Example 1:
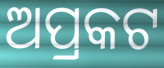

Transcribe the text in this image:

ଅପ୍ରକଟ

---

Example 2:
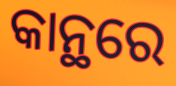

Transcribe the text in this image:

କାନ୍ଥରେ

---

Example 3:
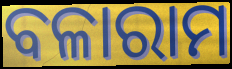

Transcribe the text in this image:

ବଳାରାମ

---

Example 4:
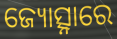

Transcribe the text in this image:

ଜ୍ୟୋତ୍ସ୍ନାରେ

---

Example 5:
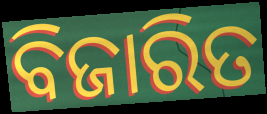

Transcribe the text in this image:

ବିଜାରିତ